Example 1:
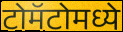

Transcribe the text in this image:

टोमॅटोमध्ये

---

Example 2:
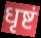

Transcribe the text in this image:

धृष्टं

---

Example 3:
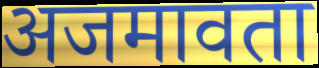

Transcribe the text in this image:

अजमावता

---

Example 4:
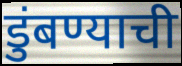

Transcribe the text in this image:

डुंबण्याची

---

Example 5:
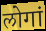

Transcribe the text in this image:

लोगां